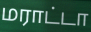
மராட்டா